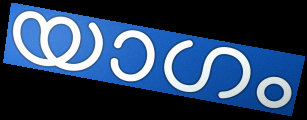
യാഗം